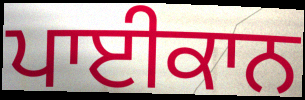
ਪਾਈਕਾਨ